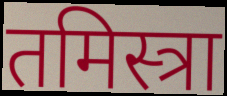
तमिस्त्रा